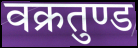
वक्रतुण्ड